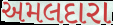
અમલદારા